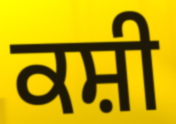
ਕਸ਼ੀ